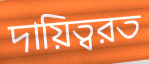
দায়িত্বরত